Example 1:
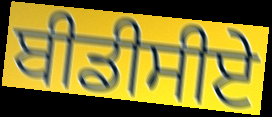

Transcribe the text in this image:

ਬੀਡੀਸੀਏ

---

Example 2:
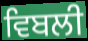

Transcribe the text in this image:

ਵਿਬਲੀ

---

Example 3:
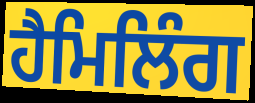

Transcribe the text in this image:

ਹੈਮਿਲਿੰਗ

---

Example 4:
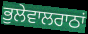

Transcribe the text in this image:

ਭੁਲੇਵਾਲਰਾਠਾਂ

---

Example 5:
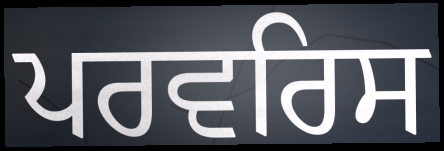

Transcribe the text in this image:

ਪਰਵਰਿਸ